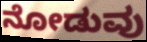
ನೋಡುವು